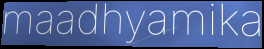
maadhyamika